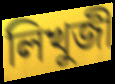
লিখুজী